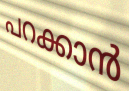
പറക്കാൻ